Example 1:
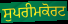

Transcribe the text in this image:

ਸੁਪਰੀਮਕੋਰਟ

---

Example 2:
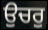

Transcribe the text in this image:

ਉਚਰੁ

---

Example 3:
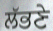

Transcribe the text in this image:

ਲੱਭਣੇ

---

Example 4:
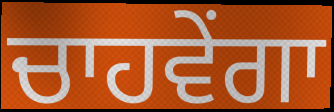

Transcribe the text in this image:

ਚਾਹਵੇਂਗਾ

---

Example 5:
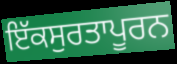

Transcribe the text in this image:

ਇੱਕਸੁਰਤਾਪੂਰਨ